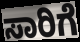
ಸಾರಿಗೆ